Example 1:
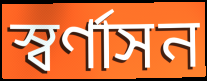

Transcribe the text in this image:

স্বর্ণাসন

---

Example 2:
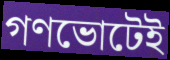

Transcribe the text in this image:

গণভোটেই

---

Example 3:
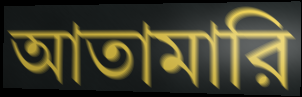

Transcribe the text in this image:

আতামারি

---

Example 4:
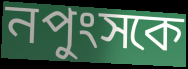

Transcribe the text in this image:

নপুংসকে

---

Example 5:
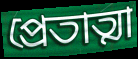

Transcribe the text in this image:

প্রেতাত্মা